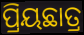
ପ୍ରିୟଛାତ୍ର